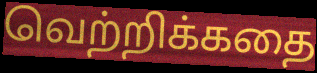
வெற்றிக்கதை